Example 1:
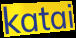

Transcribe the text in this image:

katai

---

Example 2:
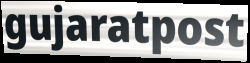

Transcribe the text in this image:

gujaratpost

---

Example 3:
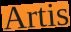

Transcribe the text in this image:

Artis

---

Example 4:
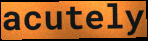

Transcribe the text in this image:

acutely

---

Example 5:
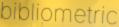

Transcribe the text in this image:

bibliometric